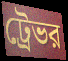
ট্রেভর